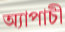
অ্যাপাচী